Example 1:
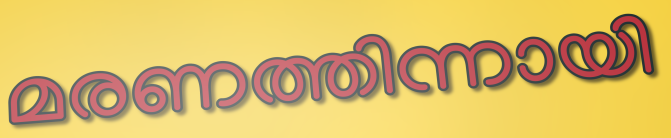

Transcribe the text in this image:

മരണത്തിന്നായി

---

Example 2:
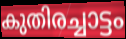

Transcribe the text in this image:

കുതിരച്ചാട്ടം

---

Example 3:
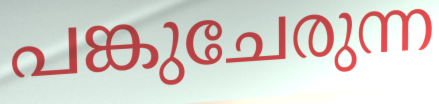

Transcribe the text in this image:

പങ്കുചേരുന്ന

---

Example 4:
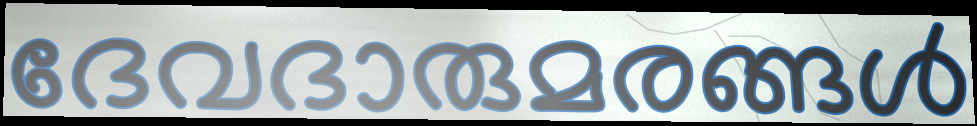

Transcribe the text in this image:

ദേവദാരുമരങ്ങൾ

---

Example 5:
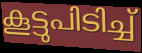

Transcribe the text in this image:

കൂട്ടുപിടിച്ച്